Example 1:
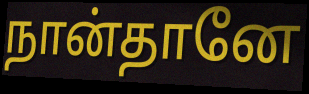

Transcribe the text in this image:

நான்தானே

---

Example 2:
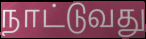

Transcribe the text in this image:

நாட்டுவது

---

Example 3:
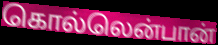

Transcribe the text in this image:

கொல்லென்பான்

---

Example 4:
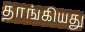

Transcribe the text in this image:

தாங்கியது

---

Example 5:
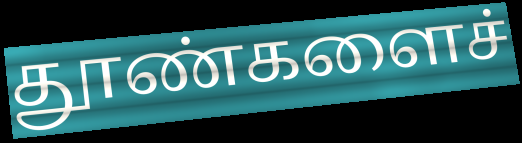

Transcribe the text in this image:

தூண்களைச்